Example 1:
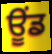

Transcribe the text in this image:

ਊਂਡ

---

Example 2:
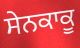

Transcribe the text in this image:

ਸੇਨਕਾਕੂ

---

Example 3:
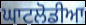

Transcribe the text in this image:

ਘਾਟਲੋਡੀਆ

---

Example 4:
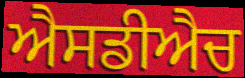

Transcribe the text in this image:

ਐਸਡੀਐਚ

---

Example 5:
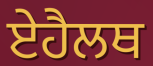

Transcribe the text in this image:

ਏਹੈਲਥ